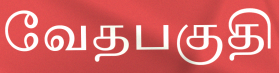
வேதபகுதி